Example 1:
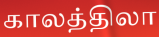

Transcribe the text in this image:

காலத்திலா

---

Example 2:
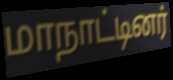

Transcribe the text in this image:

மாநாட்டினர்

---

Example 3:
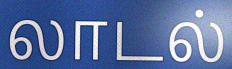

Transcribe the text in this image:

லாடல்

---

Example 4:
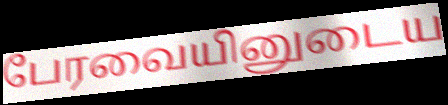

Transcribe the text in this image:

பேரவையினுடைய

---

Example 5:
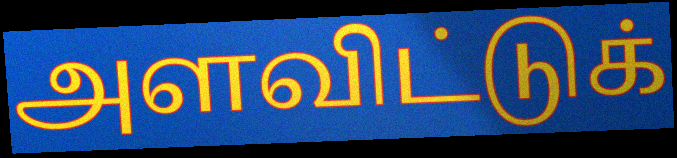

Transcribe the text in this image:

அளவிட்டுக்